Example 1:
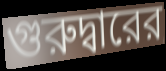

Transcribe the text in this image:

গুরুদ্বারের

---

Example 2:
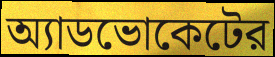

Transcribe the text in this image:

অ্যাডভোকেটের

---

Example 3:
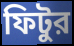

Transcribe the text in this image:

ফিটুর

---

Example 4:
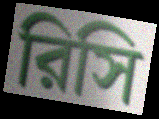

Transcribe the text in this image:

রিসি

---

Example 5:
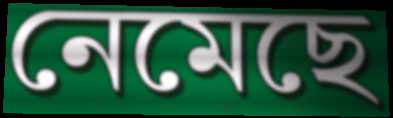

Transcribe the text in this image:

নেমেছে